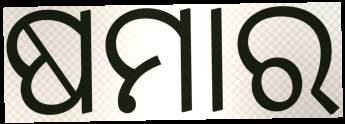
ଷମାର